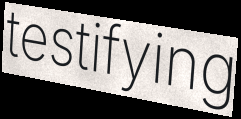
testifying